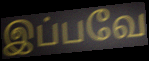
இப்பவே